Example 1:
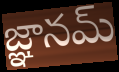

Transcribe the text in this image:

జ్ఞానమ్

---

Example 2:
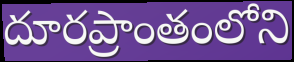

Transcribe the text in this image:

దూరప్రాంతంలోని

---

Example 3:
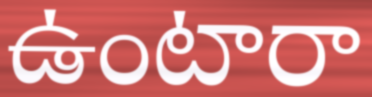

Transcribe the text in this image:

ఉంటారా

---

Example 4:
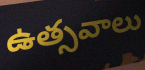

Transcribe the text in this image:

ఉత్సవాలు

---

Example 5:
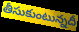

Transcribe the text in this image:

తీసుకుంటున్నదీ